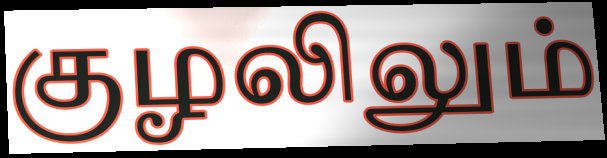
குழலிலும்